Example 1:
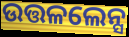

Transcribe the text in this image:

ଉତ୍ତଳଲେନ୍ସ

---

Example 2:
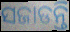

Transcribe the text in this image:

ସଜାଡନ୍ତି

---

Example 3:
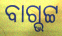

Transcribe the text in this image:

ବାଗ୍ଭଟ୍ଟ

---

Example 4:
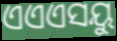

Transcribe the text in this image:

ଏଏଏସୟୁ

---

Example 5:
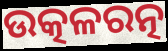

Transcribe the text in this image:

ଉତ୍କଳରତ୍ନ